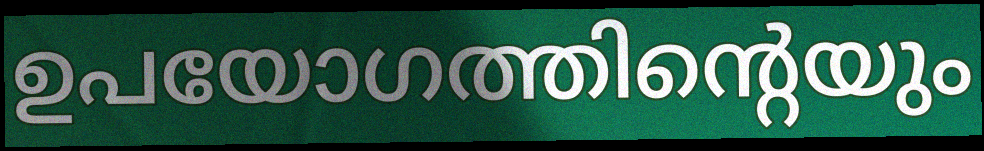
ഉപയോഗത്തിന്റെയും